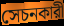
সেচনকারী